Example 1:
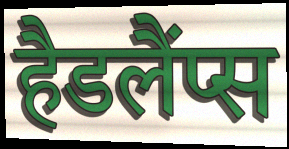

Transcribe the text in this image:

हैडलैंप्स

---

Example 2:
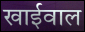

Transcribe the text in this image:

खाईवाल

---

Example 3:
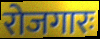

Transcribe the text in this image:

रोजगारः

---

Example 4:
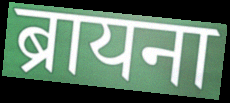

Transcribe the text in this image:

ब्रायना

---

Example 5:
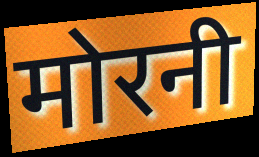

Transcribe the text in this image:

मोरनी